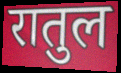
रातुल